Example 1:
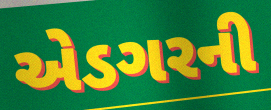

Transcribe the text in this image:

એડગરની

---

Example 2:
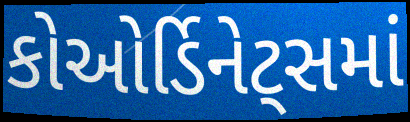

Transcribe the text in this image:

કોઓર્ડિનેટ્સમાં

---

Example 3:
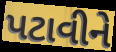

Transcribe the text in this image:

પટાવીને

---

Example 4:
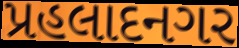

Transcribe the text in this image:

પ્રહલાદનગર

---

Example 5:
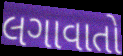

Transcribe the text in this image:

લગાવાતો